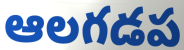
ఆలగడప